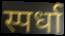
स्पर्धा